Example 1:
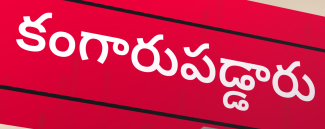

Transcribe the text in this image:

కంగారుపడ్డారు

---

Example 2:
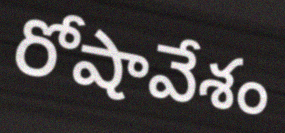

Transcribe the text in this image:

రోషావేశం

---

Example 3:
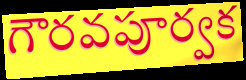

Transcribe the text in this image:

గౌరవపూర్వక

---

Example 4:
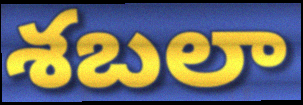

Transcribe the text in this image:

శబలా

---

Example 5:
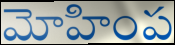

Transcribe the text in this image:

మోహింప